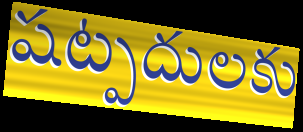
షట్పదులకు